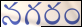
నగరం